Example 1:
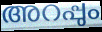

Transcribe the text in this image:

അറപ്പും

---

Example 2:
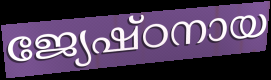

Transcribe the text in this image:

ജ്യേഷ്ഠനായ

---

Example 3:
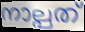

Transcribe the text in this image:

നാല്പത്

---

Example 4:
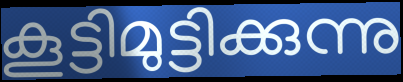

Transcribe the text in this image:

കൂട്ടിമുട്ടിക്കുന്നു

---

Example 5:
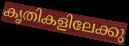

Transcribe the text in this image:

കൃതികളിലേക്കു